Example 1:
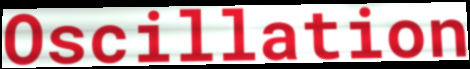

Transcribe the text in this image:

Oscillation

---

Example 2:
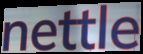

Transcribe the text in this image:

nettle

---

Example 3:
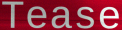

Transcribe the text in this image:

Tease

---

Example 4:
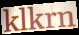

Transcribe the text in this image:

klkrn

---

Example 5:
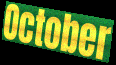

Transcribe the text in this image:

October